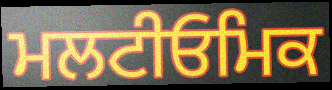
ਮਲਟੀਓਮਿਕ